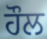
ਹੌਲ